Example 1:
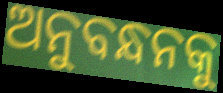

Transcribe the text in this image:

ଅନୁବନ୍ଧନକୁ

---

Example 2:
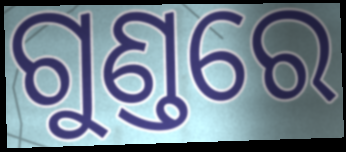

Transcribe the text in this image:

ଗୁଣ୍ଡରେ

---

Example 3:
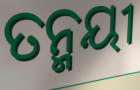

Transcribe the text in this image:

ତନ୍ମୟୀ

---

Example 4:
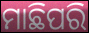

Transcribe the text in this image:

ମାଛିପରି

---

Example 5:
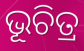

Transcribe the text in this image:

ଭୂଚିତ୍ର